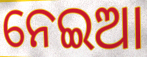
ନେଇଆ